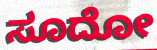
ಸೂದೋ